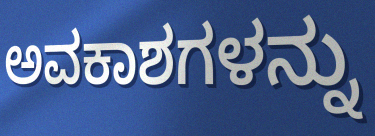
ಅವಕಾಶಗಳನ್ನು